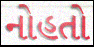
નોહતો